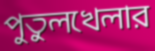
পুতুলখেলার